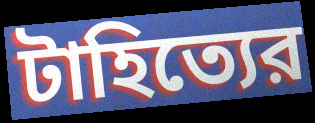
টাহিত্যের